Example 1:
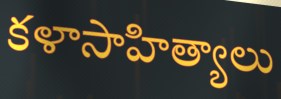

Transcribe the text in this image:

కళాసాహిత్యాలు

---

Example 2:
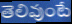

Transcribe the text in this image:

తెలివుంటే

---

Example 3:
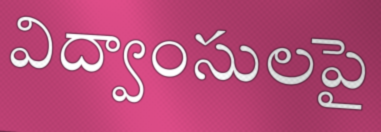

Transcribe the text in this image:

విద్వాంసులపై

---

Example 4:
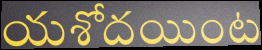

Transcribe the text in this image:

యశోదయింట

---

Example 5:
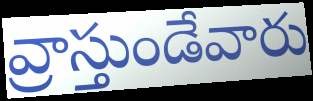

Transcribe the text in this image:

వ్రాస్తుండేవారు